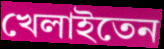
খেলাইতেন